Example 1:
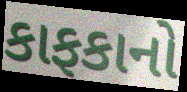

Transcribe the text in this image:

કાફકાનો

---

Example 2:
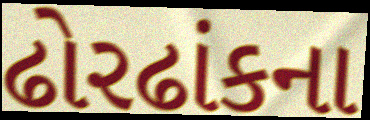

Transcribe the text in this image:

ઢોરઢાંકના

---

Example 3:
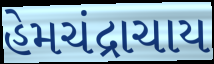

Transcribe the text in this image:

હેમચંદ્રાચાય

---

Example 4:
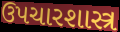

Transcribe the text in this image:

ઉપચારશાસ્ત્ર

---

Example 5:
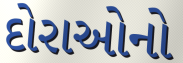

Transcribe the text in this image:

દોરાઓનો